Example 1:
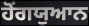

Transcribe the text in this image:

ਹੋਂਗਯੁਆਨ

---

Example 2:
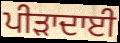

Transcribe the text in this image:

ਪੀੜਾਦਾਈ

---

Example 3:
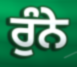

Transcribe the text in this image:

ਰੁੰਨੇ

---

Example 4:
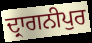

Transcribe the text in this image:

ਦ੍ਰਾਗਨੀਪੁਰ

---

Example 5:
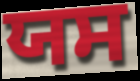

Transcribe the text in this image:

ਯਸ